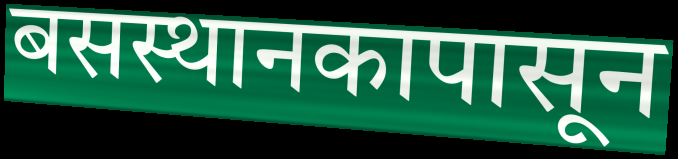
बसस्थानकापासून